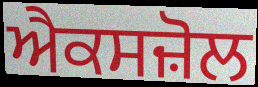
ਐਕਸਜ਼ੋਲ